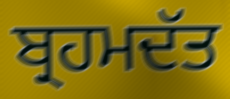
ਬ੍ਰਹਮਦੱਤ